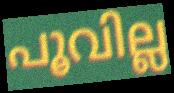
പൂവില്ല